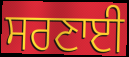
ਸਰਣਾਈ